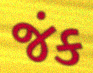
જંક